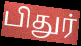
பிதுர்